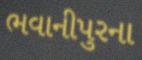
ભવાનીપુરના